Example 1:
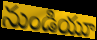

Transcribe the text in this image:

నుండియూ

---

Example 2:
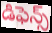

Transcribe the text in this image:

డిఫెన్స్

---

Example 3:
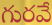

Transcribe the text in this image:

గురవే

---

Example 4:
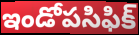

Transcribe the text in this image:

ఇండోపసిఫిక్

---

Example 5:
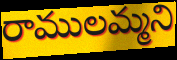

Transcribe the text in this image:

రాములమ్మని